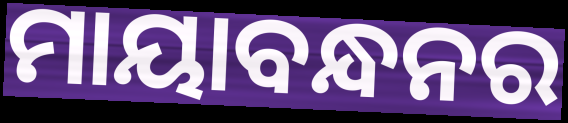
ମାୟାବନ୍ଧନର